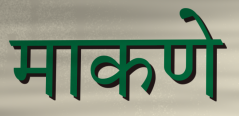
माकणे